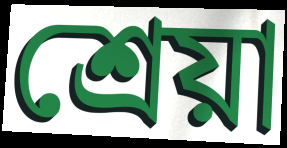
শ্ৰেয়া